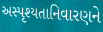
અસ્પૃશ્યતાનિવારણને